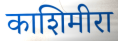
काशिमीरा